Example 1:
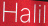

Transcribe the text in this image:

Halil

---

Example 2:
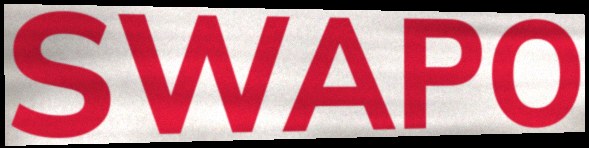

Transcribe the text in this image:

SWAPO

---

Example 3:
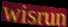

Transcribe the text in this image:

wisrun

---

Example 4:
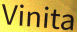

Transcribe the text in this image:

Vinita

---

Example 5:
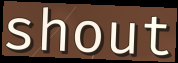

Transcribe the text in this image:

shout